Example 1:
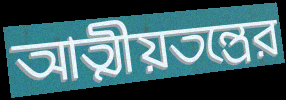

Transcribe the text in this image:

আত্মীয়তন্ত্রের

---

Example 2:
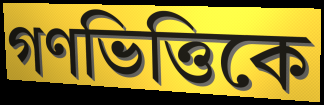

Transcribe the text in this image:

গণভিত্তিকে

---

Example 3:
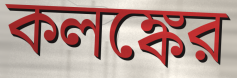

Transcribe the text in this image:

কলঙ্কের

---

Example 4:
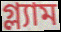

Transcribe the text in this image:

গ্ল্যাম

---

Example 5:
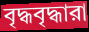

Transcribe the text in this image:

বৃদ্ধবৃদ্ধারা